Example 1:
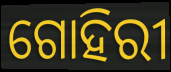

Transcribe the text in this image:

ଗୋହିରୀ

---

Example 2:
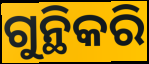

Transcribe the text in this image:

ଗୁନ୍ଥିକରି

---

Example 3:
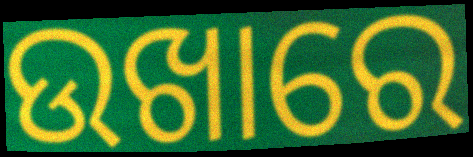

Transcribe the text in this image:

ଉଖାରେ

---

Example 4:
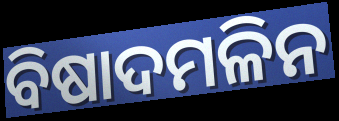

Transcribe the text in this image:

ବିଷାଦମଳିନ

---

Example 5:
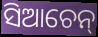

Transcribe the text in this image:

ସିଆଚେନ୍